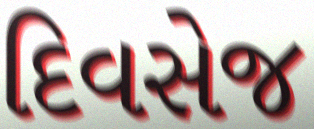
દિવસેજ